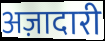
अज़ादारी